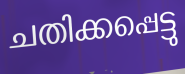
ചതിക്കപ്പെട്ടു